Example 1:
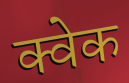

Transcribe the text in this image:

क्वेक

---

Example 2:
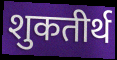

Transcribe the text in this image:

शुकतीर्थ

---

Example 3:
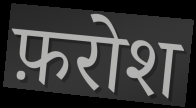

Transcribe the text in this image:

फ़रोश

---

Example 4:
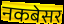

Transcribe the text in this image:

नकबेसर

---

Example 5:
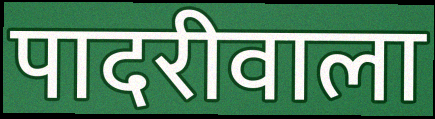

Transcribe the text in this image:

पादरीवाला